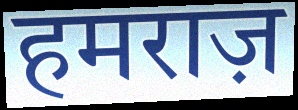
हमराज़